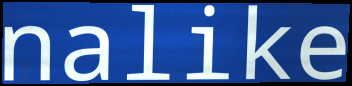
nalike